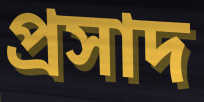
প্ৰসাদ